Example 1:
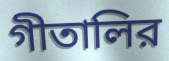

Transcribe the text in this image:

গীতালির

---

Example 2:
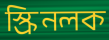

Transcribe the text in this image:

স্ক্রিনলক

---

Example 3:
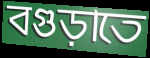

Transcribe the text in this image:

বগুড়াতে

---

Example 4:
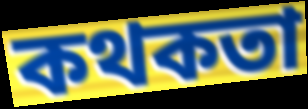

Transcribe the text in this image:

কথকতা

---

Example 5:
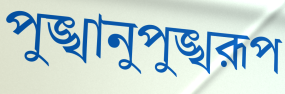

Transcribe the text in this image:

পুঙ্খানুপুঙ্খরূপ